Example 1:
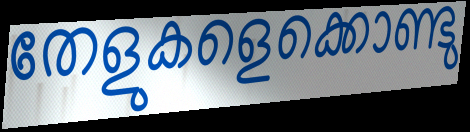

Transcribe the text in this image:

തേളുകളെക്കൊണ്ടു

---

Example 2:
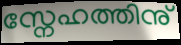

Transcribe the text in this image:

സ്നേഹത്തിനു്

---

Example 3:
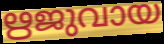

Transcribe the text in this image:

ഋജുവായ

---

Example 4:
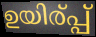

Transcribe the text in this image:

ഉയിര്പ്പ്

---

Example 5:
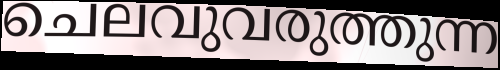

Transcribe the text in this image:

ചെലവുവരുത്തുന്ന